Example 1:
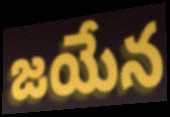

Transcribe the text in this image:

జయేన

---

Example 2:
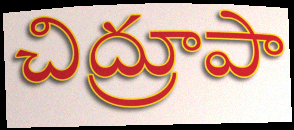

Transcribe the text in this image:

చిద్రూపా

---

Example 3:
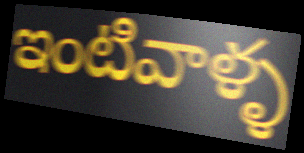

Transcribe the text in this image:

ఇంటివాళ్ళ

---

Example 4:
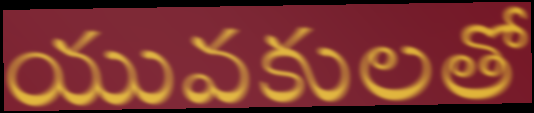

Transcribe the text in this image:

యువకులతో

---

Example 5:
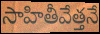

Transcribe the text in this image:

సాహితీవేత్తనే